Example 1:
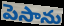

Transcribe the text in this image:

పెసాను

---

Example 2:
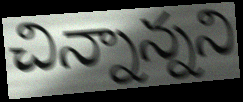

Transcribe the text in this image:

చిన్నాన్నని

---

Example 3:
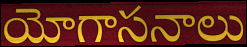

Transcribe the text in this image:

యోగాసనాలు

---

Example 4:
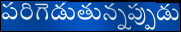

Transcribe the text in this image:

పరిగెడుతున్నప్పుడు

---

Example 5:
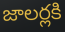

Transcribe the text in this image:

జాలర్లకి